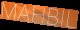
MAHBIL